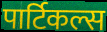
पार्टिकल्‍स